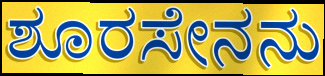
ಶೂರಸೇನನು